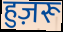
हुज़रू